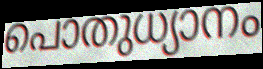
പൊതുധ്യാനം